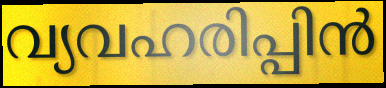
വ്യവഹരിപ്പിൻ